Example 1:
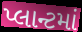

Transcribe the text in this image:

પ્લાન્ટમાં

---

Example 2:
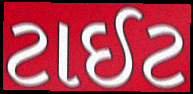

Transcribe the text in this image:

ટાઈટ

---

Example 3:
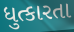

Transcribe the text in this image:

ધુત્કારતા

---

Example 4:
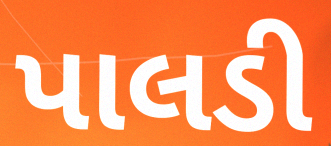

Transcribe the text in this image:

પાલડી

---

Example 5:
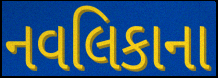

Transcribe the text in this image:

નવલિકાના